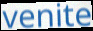
venite